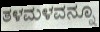
ತಳಮಳವನ್ನೂ